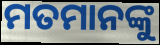
ମତମାନଙ୍କୁ